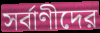
সর্বাণীদের